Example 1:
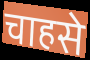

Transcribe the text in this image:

चाहसे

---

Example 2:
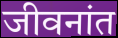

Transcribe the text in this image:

जीवनांत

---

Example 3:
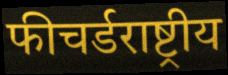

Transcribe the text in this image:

फीचर्डराष्ट्रीय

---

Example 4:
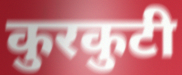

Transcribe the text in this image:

कुरकुटी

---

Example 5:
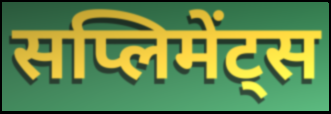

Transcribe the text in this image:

सप्लिमेंट्स